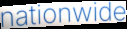
nationwide